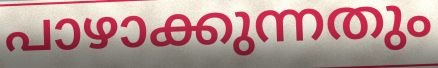
പാഴാക്കുന്നതും